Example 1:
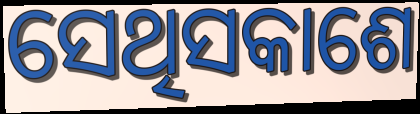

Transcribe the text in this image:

ସେଥିସକାଶେ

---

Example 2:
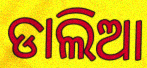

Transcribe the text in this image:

ଡାଲିଆ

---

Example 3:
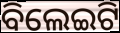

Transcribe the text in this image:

ବିଲେଇଟି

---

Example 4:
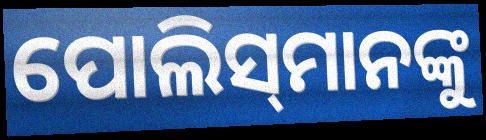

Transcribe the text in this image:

ପୋଲିସ୍‌ମାନଙ୍କୁ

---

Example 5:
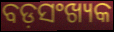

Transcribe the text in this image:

ବଡ଼ସଂଖ୍ୟକ